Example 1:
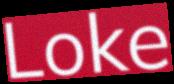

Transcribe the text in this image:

Loke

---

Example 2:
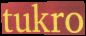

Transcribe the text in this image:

tukro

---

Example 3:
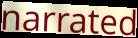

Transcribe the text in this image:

narrated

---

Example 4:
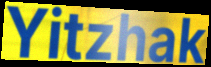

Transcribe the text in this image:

Yitzhak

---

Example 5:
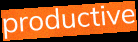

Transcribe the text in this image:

productive